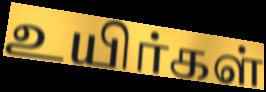
உயிர்கள்